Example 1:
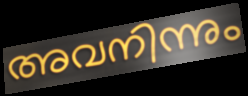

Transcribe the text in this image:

അവനിന്നും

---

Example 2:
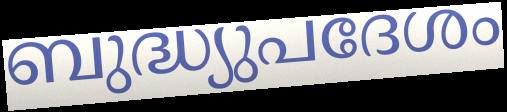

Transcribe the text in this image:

ബുദ്ധ്യുപദേശം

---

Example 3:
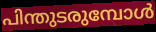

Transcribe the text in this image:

പിന്തുടരുമ്പോൾ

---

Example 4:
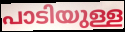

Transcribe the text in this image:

പാടിയുള്ള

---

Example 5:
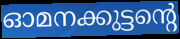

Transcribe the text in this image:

ഓമനക്കുട്ടന്റെ